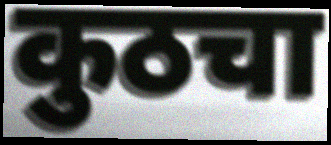
कुठचा